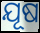
ଯୂଷ